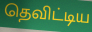
தெவிட்டிய